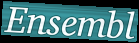
Ensembl